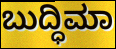
ಬುದ್ಧಿಮಾ